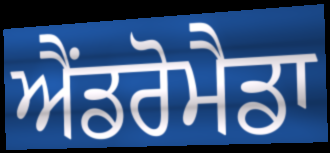
ਐਂਡਰੋਮੈਡਾ